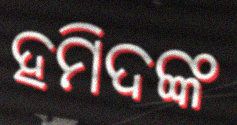
ହମିଦଙ୍କ